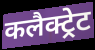
कलैक्ट्रेट